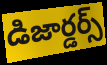
డిజార్డర్స్